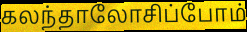
கலந்தாலோசிப்போம்